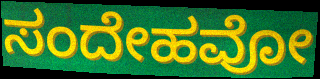
ಸಂದೇಹವೋ